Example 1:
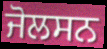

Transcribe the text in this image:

ਜੋਲਸਨ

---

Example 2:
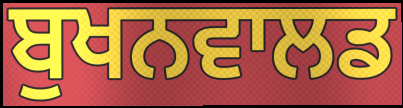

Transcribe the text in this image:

ਬੁਖਨਵਾਲਡ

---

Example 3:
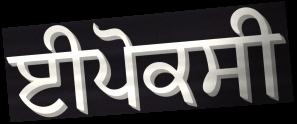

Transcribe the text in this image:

ਈਪੋਕਸੀ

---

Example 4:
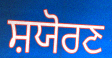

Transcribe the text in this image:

ਸ਼ਯੋਰਣ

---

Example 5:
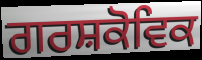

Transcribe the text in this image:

ਗਰਸ਼ਕੋਵਿਕ